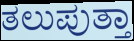
ತಲುಪುತ್ತಾ